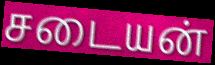
சடையன்